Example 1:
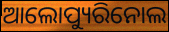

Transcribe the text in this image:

ଆଲୋପ୍ୟୁରିନୋଲ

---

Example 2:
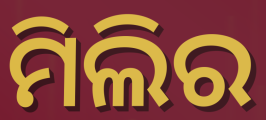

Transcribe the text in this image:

ମିଲିର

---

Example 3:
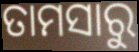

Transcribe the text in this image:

ତାମସାରୁ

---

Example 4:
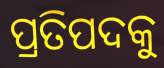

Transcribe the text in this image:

ପ୍ରତିପଦକୁ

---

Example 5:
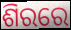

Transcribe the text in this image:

ଶିରରେ